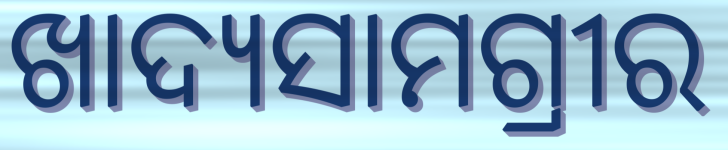
ଖାଦ୍ୟସାମଗ୍ରୀର